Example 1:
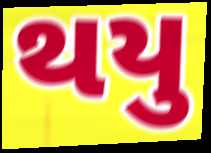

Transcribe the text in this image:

થયુ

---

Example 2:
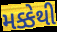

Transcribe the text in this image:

મક્કેથી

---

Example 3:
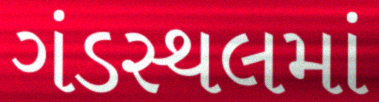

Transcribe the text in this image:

ગંડસ્થલમાં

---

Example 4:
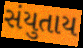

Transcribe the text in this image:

સંયુતાય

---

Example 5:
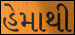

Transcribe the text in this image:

હેમાથી